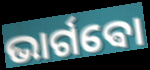
ଭାର୍ଗଵୋ